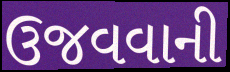
ઉજવવાની